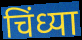
चिंध्या